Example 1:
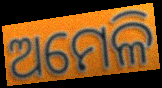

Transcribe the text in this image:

ଅମେଳି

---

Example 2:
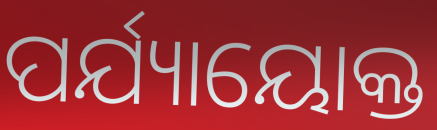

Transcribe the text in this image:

ପର୍ଯ୍ୟାୟୋକ୍ତ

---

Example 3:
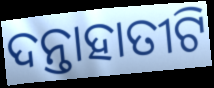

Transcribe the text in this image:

ଦନ୍ତାହାତୀଟି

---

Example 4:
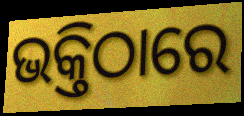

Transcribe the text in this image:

ଭକ୍ତିଠାରେ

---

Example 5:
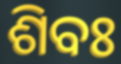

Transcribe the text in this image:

ଶିବଃ